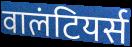
वालंटियर्स